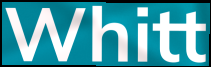
Whitt